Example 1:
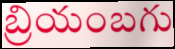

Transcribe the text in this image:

బ్రియంబగు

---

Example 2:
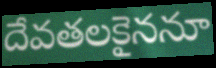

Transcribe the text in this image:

దేవతలకైననూ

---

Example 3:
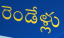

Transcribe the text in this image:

రెండేళ్లు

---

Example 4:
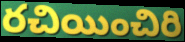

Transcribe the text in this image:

రచియించిరి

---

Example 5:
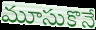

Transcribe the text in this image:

మూసుకొనే